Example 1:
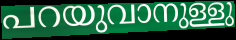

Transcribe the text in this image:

പറയുവാനുള്ളു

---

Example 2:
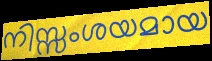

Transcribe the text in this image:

നിസ്സംശയമായ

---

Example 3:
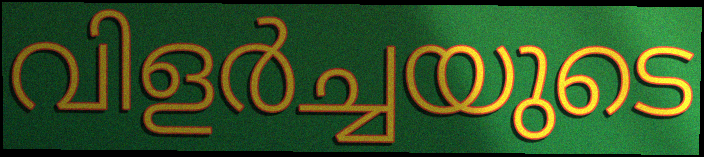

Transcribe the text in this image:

വിളർച്ചയുടെ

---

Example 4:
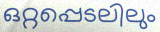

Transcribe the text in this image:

ഒറ്റപ്പെടലിലും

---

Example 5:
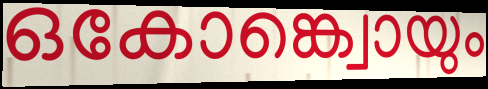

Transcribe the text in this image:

ഒകോങ്ക്വൊയും